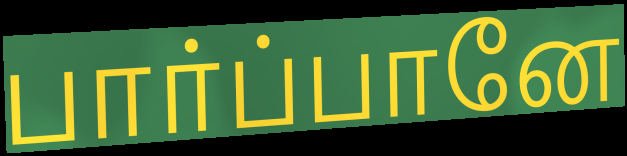
பார்ப்பானே